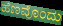
ಹೆಣವೊಂದು